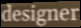
designer